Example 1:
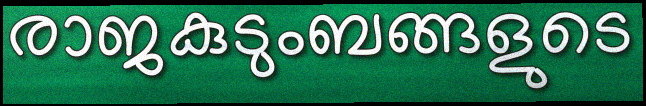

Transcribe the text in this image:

രാജകുടുംബങ്ങളുടെ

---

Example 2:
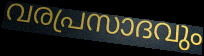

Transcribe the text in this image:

വരപ്രസാദവും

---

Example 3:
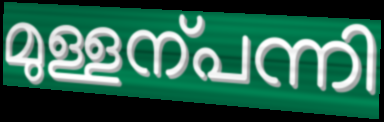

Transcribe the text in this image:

മുള്ളന്പന്നി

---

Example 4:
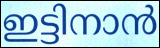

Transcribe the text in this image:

ഇട്ടിനാൻ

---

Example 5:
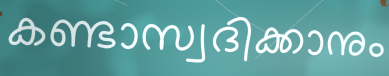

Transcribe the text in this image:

കണ്ടാസ്വദിക്കാനും